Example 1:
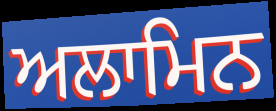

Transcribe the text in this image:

ਅਲਾਮਿਨ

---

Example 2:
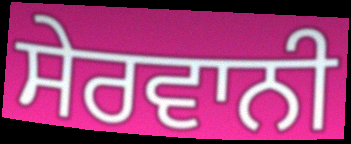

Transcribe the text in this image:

ਸੇਰਵਾਨੀ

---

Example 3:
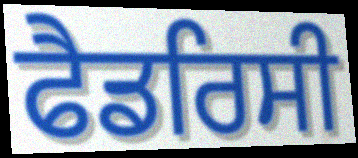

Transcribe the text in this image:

ਫੈਡਰਿਸੀ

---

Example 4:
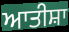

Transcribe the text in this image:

ਆਤੀਸ਼ਾ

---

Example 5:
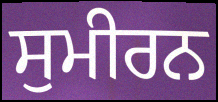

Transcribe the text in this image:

ਸੁਮੀਰਨ